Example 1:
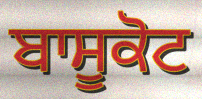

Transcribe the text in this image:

ਬਾਸੂਕੋਟ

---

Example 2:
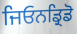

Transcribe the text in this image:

ਜਿਓਨਡ੍ਰਿਡੋ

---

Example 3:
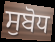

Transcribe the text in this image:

ਸੁਬੋਧ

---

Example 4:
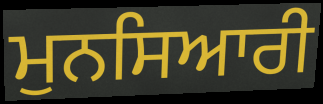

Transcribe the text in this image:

ਮੁਨਸਿਆਰੀ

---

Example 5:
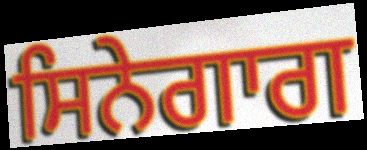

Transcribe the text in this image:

ਸਿਨੇਗਾਗ